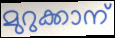
മുറുക്കാന്